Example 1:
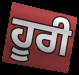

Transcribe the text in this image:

ਹੂਰੀ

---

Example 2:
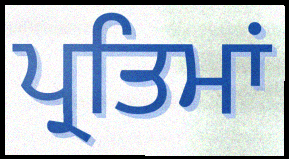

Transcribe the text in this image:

ਪ੍ਰਤਿਮਾਂ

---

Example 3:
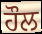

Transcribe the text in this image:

ਹੌਲ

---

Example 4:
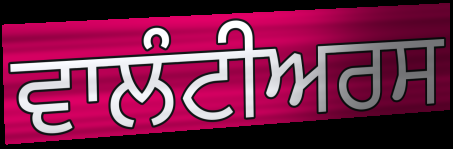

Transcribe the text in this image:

ਵਾਲੰਟੀਅਰਸ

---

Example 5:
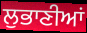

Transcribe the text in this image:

ਲੁਭਾਣੀਆਂ